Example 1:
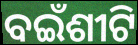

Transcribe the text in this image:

ବଇଁଶୀଟି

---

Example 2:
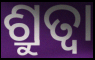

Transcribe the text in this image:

ଶ୍ରୁତ୍ଵା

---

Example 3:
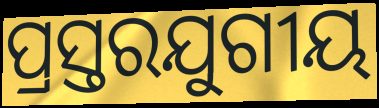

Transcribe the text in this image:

ପ୍ରସ୍ତରଯୁଗୀୟ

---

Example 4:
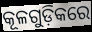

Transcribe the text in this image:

କୂଳଗୁଡ଼ିକରେ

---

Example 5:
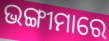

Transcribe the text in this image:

ଭଙ୍ଗୀମାରେ